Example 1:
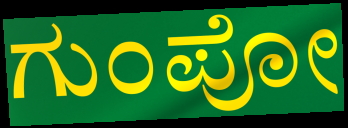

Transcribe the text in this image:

ಗುಂಪೋ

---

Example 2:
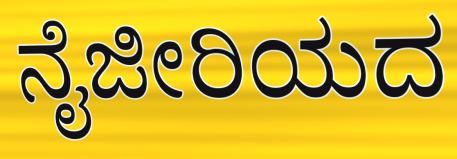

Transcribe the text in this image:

ನೈಜೀರಿಯದ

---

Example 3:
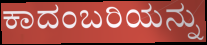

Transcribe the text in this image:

ಕಾದಂಬರಿಯನ್ನು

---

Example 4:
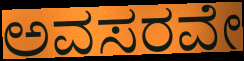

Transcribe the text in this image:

ಅವಸರವೇ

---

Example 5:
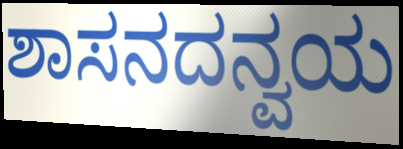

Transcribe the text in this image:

ಶಾಸನದನ್ವಯ